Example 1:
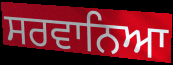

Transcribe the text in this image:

ਸਰਵਾਨਿਆ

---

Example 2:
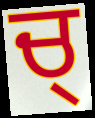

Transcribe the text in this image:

ਚ੍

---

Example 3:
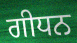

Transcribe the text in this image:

ਗੀਧਨ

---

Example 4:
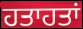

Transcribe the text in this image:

ਹਤਾਹਤਾਂ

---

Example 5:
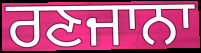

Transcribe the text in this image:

ਰਣਜਾਨਾ